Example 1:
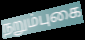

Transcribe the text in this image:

நறும்புகை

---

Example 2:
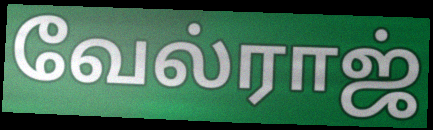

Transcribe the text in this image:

வேல்ராஜ்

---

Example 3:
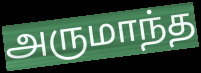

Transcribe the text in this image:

அருமாந்த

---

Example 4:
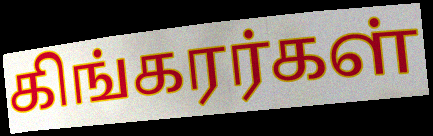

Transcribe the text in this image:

கிங்கரர்கள்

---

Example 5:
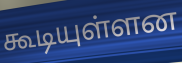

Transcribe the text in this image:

கூடியுள்ளன